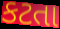
કટતા